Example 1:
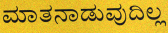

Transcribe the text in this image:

ಮಾತನಾಡುವುದಿಲ್ಲ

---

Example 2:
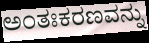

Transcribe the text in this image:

ಅಂತಃಕರಣವನ್ನು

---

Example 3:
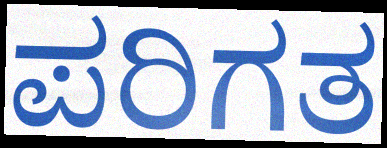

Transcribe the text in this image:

ಪರಿಗತ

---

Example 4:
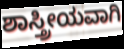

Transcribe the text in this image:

ಶಾಸ್ತ್ರೀಯವಾಗಿ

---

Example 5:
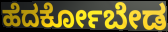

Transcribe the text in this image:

ಹೆದರ್ಕೋಬೇಡ